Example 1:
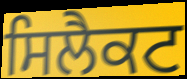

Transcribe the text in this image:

ਸਿਲੈਕਟ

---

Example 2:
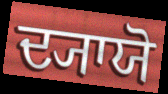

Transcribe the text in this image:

ਦ੍ਯਾਯੋ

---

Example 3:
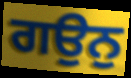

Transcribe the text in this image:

ਗਉਨੁ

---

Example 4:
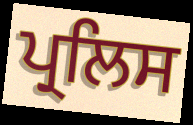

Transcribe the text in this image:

ਪ੍ਰਲਿਸ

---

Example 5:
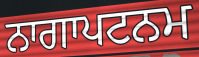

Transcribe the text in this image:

ਨਾਗਾਪਟਨਮ